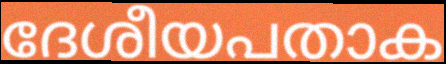
ദേശീയപതാക